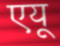
एयू